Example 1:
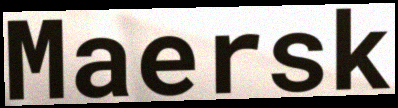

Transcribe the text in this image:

Maersk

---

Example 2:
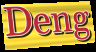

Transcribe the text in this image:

Deng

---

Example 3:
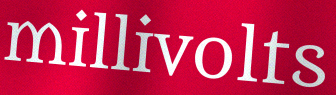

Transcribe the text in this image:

millivolts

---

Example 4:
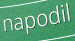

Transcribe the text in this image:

napodil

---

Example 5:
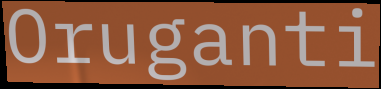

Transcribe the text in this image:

Oruganti